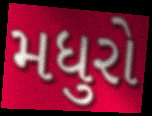
મધુરો